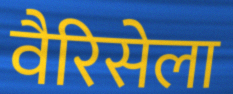
वैरिसेला